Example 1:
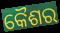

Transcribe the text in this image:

କୈଶର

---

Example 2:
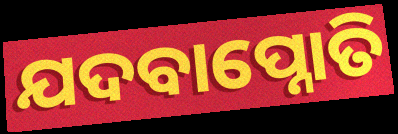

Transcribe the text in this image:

ଯଦବାପ୍ନୋତି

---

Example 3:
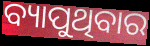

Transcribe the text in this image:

ବ୍ୟାପୁଥିବାର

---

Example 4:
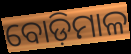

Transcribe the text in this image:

ବୋଡ଼ିମାଳ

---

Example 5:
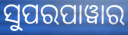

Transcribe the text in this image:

ସୁପରପାୱାର